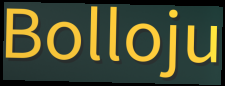
Bolloju